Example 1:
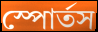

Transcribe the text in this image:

স্পোর্তস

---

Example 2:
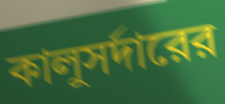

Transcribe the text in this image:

কালুসর্দারের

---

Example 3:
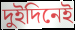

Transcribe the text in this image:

দুইদিনেই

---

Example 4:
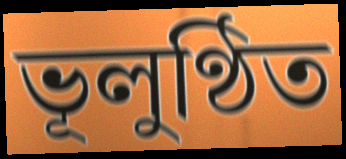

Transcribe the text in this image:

ভূলুণ্ঠিত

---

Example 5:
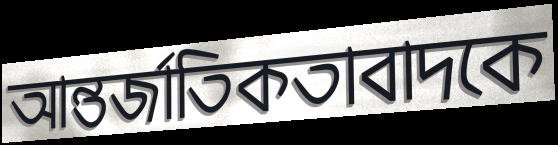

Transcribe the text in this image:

আন্তর্জাতিকতাবাদকে